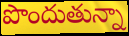
పొందుతున్నా